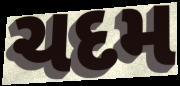
ચદમ